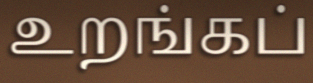
உறங்கப்